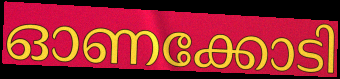
ഓണക്കോടി